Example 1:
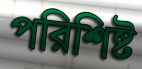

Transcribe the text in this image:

পরিশিষ্ট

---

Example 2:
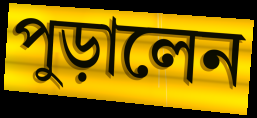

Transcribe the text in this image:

পুড়ালেন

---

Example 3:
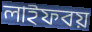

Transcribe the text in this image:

লাইফবয়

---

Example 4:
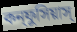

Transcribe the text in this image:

কন্ফুসিয়াস্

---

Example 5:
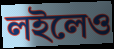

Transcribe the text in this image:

লইলেও